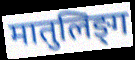
मातुलिङ्ग